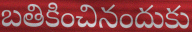
బతికించినందుకు